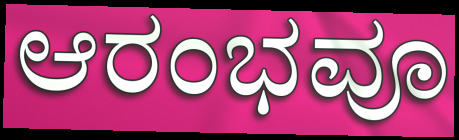
ಆರಂಭವೂ